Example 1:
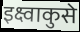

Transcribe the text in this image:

इक्ष्वाकुसे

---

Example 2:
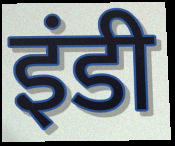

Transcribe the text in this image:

इंडी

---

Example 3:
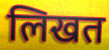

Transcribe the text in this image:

लिखत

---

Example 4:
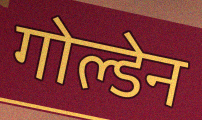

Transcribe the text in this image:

गोल्डेन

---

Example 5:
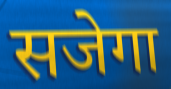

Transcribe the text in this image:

सजेगा